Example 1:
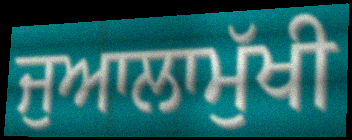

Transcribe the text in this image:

ਜੁਆਲਾਮੁੱਖੀ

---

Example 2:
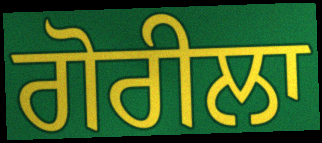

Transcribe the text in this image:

ਗੋਰੀਲਾ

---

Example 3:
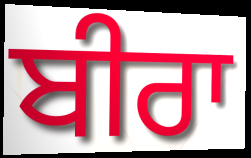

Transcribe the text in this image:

ਬੀਰਾ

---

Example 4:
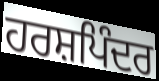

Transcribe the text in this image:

ਹਰਸ਼ਪਿੰਦਰ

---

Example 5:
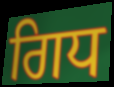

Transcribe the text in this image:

ਗਿਧ